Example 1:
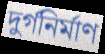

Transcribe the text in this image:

দুর্গনির্মাণ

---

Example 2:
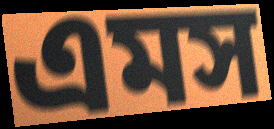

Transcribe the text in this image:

এমস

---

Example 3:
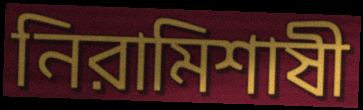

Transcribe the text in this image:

নিরামিশাষী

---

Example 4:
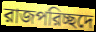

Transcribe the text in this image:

রাজপরিচ্ছদে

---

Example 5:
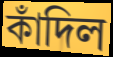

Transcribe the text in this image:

কাঁদিল